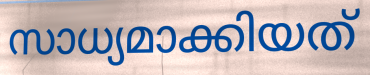
സാധ്യമാക്കിയത്